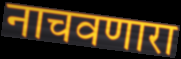
नाचवणारा